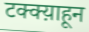
टक्क्य़ाहून